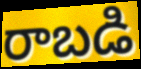
రాబడి